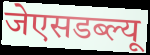
जेएसडब्ल्यू